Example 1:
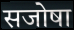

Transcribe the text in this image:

सजोषा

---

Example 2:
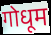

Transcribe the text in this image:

गोधूम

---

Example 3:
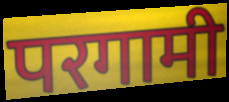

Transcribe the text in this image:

परगामी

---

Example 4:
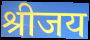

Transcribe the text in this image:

श्रीजय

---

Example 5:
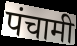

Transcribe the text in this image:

पंचामी